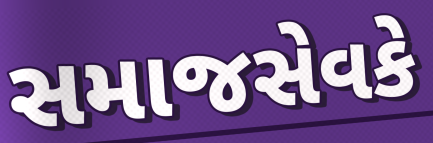
સમાજસેવકે